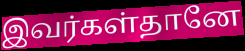
இவர்கள்தானே